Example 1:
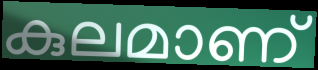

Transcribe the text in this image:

കുലമാണ്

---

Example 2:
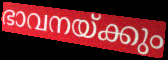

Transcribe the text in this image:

ഭാവനയ്ക്കും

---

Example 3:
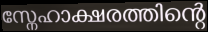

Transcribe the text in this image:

സ്നേഹാക്ഷരത്തിന്റെ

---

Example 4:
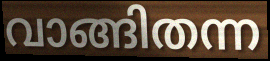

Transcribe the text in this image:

വാങ്ങിതന്ന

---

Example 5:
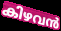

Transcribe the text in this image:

കിഴവൻ